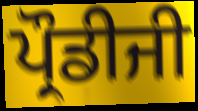
ਪ੍ਰੌਡੀਜੀ